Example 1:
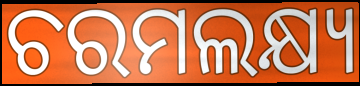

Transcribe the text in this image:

ଚରମଲକ୍ଷ୍ୟ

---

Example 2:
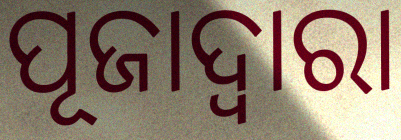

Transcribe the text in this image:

ପୂଜାଦ୍ଵାରା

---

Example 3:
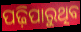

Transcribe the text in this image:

ପଢ଼ିପାରୁଥିବ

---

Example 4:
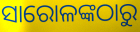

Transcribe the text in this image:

ସାରୋଳଙ୍କଠାରୁ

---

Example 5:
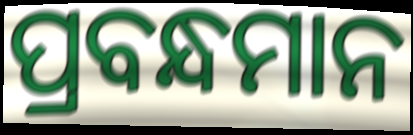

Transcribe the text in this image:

ପ୍ରବନ୍ଧମାନ